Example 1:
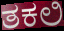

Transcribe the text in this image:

ತಕಲಿ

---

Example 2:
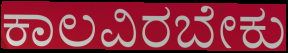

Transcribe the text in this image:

ಕಾಲವಿರಬೇಕು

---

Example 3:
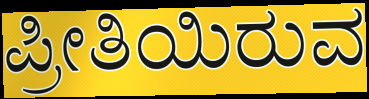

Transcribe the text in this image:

ಪ್ರೀತಿಯಿರುವ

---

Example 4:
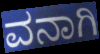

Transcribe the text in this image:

ವನಾಗಿ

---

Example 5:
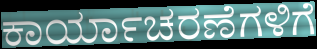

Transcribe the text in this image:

ಕಾರ್ಯಾಚರಣೆಗಳಿಗೆ